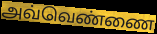
அவ்வெண்ணை